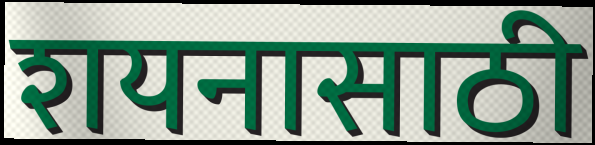
शयनासाठी